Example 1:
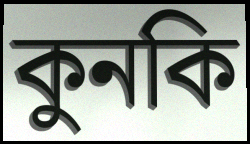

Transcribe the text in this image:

কুনকি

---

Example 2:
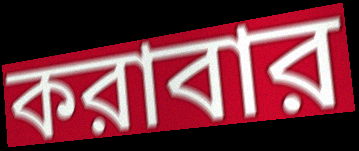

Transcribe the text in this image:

করাবার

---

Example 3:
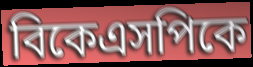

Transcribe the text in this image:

বিকেএসপিকে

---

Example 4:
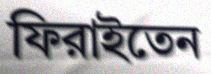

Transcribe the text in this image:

ফিরাইতেন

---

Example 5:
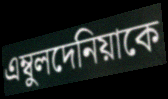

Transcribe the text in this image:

এম্বুলদেনিয়াকে